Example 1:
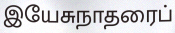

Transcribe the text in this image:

இயேசுநாதரைப்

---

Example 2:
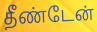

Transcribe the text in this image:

தீண்டேன்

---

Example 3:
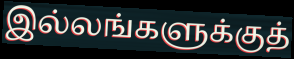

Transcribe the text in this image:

இல்லங்களுக்குத்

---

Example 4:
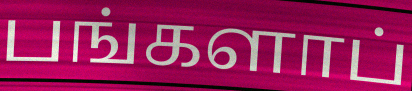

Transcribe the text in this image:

பங்களாப்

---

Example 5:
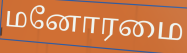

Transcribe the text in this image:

மனோரமை